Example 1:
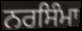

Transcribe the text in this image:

ਨਰਸਿੰਮਾ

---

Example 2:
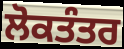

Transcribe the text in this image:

ਲੋਕਤੰਤਰ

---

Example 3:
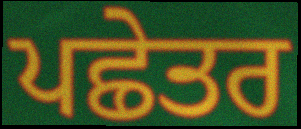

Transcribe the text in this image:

ਪਛੇਤਰ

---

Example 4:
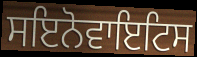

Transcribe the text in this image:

ਸਇਨੋਵਾਇਟਿਸ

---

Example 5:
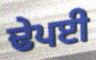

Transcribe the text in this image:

ਢੇਪਈ